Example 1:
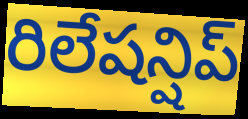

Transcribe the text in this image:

రిలేషన్షిప్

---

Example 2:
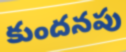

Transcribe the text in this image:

కుందనపు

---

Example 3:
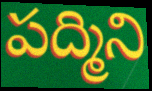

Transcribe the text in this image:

పద్మిని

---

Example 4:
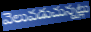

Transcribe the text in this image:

వెలువడుచున్నట్లు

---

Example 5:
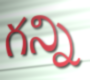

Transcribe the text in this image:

గన్ని